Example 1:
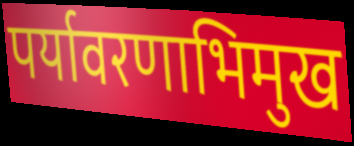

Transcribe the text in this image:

पर्यावरणाभिमुख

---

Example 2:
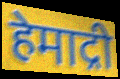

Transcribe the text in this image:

हेमाद्री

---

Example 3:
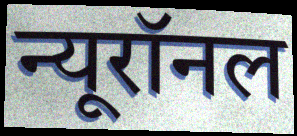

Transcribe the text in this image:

न्यूरॉनल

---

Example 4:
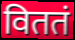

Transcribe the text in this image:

विततं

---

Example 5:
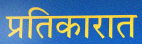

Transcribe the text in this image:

प्रतिकारात